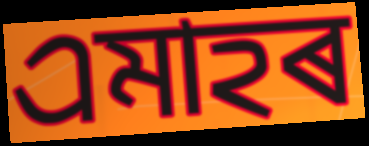
এমাহৰ